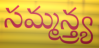
సమ్మన్త్ర్య